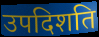
उपदिशति